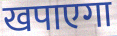
खपाएगा